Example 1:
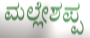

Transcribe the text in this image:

ಮಲ್ಲೇಶಪ್ಪ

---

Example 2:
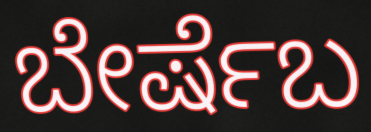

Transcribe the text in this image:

ಬೇರ್ಷೆಬ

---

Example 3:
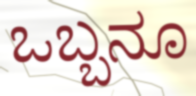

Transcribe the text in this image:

ಒಬ್ಬನೂ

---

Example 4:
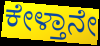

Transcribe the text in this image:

ಕೇಳ್ತಾನೇ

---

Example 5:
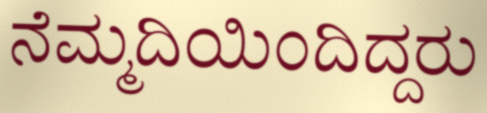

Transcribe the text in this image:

ನೆಮ್ಮದಿಯಿಂದಿದ್ದರು